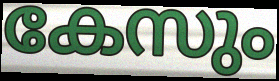
കേസും